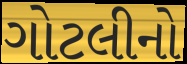
ગોટલીનો